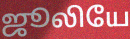
ஜூலியே